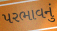
પરભાવનું